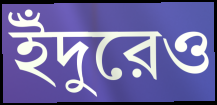
ইঁদুরেও